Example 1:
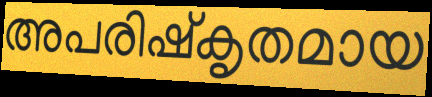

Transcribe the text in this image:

അപരിഷ്കൃതമായ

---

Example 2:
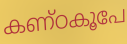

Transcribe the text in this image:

കണ്ഠകൂപേ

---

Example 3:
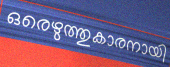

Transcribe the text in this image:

ഒരെഴുത്തുകാരനായി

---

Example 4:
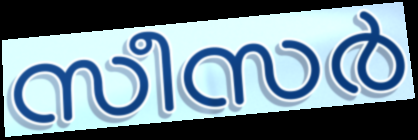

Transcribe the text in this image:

സീസർ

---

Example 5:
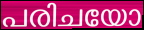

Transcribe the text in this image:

പരിചയോ